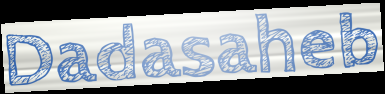
Dadasaheb